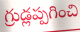
గ్రుడ్లప్పగించి